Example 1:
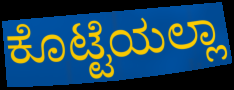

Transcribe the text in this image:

ಕೊಟ್ಟೆಯಲ್ಲಾ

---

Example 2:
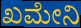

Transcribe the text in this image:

ಖಮೇನಿ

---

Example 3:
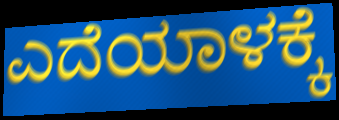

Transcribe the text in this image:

ಎದೆಯಾಳಕ್ಕೆ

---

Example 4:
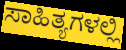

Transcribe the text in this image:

ಸಾಹಿತ್ಯಗಳಲ್ಲಿ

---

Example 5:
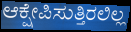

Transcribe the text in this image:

ಆಕ್ಷೇಪಿಸುತ್ತಿರಲಿಲ್ಲ